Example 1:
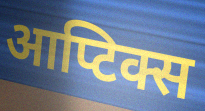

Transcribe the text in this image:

आप्टिक्स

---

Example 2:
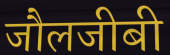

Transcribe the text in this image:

जौलजीबी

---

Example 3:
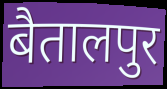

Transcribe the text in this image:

बैतालपुर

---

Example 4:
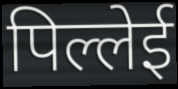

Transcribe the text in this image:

पिल्लेई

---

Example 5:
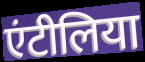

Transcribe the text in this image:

एंटीलिया